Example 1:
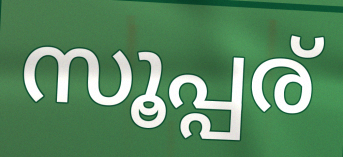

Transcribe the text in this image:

സൂപ്പര്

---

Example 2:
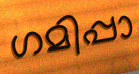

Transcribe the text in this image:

ഗമിപ്പാ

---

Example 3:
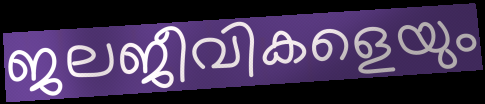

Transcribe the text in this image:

ജലജീവികളെയും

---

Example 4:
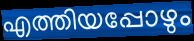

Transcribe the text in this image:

എത്തിയപ്പോഴും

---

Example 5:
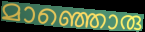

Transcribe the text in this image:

മാഞ്ഞൊരു